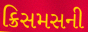
ક્રિસમસની